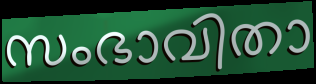
സംഭാവിതാ